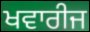
ਖਵਾਰੀਜ